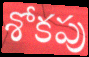
శోకపు